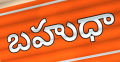
బహుధా